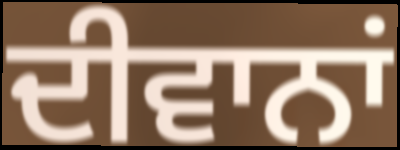
ਦੀਵਾਨਾਂ